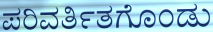
ಪರಿವರ್ತಿತಗೊಂಡು